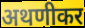
अथणीकर